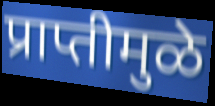
प्राप्तीमुळे